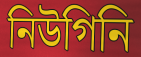
নিউগিনি